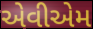
એવીએમ